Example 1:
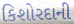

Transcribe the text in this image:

કિશોરદાની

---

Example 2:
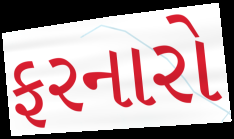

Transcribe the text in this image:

ફરનારો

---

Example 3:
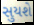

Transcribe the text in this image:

સુયશે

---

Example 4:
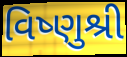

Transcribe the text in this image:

વિષ્ણુશ્રી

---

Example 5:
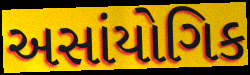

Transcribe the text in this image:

અસાંયોગિક